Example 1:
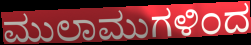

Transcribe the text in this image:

ಮುಲಾಮುಗಳಿಂದ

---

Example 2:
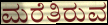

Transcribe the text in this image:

ಮರೆತಿರುವ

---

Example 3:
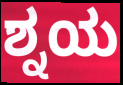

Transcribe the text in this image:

ಶ್ನಯ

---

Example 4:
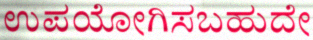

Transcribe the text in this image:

ಉಪಯೋಗಿಸಬಹುದೇ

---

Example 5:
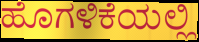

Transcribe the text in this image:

ಹೊಗಳಿಕೆಯಲ್ಲಿ